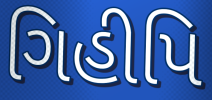
ગિહીપિ